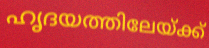
ഹൃദയത്തിലേയ്ക്ക്